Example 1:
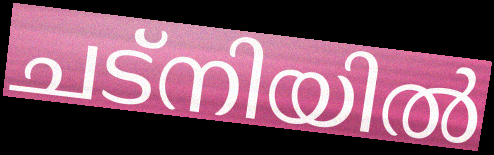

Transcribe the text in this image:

ചട്നിയിൽ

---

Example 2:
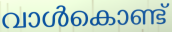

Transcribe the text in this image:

വാൾകൊണ്ട്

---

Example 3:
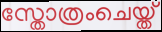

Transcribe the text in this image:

സ്തോത്രംചെയ്ത്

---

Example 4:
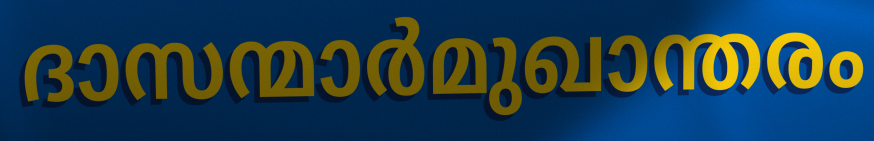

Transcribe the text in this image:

ദാസന്മാർമുഖാന്തരം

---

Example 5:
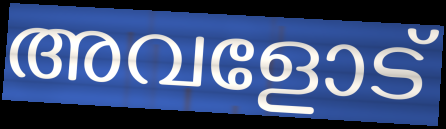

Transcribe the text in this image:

അവളോട്